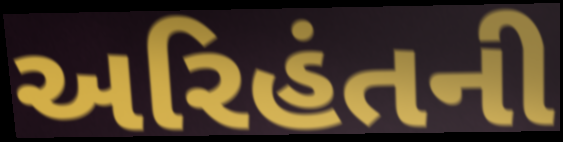
અરિહંતની